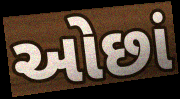
ઓછાં